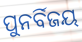
ପୁନର୍ବିଜୟ